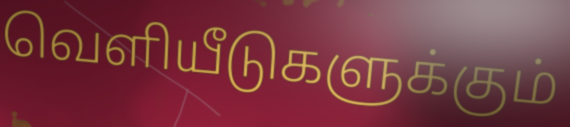
வெளியீடுகளுக்கும்